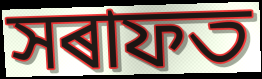
সৰাফত